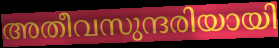
അതീവസുന്ദരിയായി